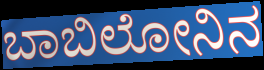
ಬಾಬಿಲೋನಿನ